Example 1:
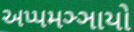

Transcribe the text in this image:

અપ્પમઞ્ઞાયો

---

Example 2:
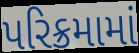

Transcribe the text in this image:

પરિક્રમામાં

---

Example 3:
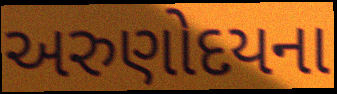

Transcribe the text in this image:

અરુણોદયના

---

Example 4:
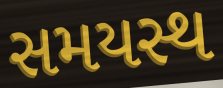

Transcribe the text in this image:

સમયસ્થ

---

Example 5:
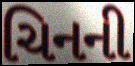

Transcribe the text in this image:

ચિનની